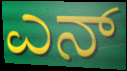
ಎನ್